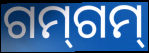
ଗମ୍‌ଗମ୍